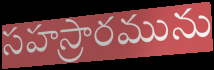
సహస్రారమును